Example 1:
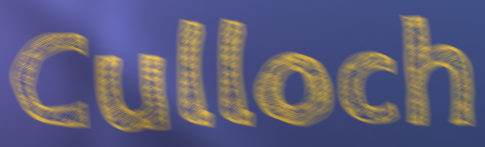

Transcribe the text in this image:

Culloch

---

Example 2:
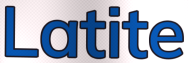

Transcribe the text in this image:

Latite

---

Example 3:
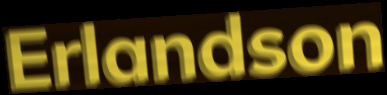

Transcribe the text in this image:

Erlandson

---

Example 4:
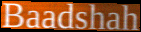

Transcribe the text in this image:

Baadshah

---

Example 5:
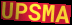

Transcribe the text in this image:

UPSMA